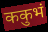
ककुभं